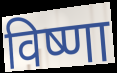
विष्णा